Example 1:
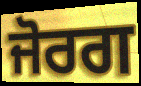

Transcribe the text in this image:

ਜੋਰਗ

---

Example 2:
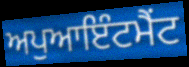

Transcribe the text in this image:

ਅਪੁਆਇੰਟਮੈਂਟ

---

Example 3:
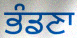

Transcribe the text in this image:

ਭੰਡਣਾ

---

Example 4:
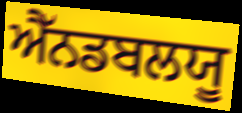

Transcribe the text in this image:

ਐੱਨਡਬਲਯੂ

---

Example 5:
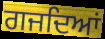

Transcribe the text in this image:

ਗਜਦਿਆਂ